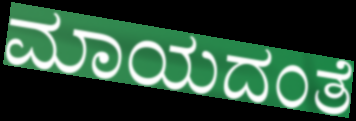
ಮಾಯದಂತೆ